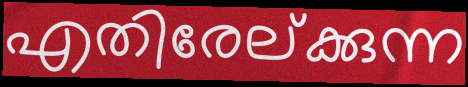
എതിരേല്ക്കുന്ന